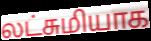
லட்சுமியாக